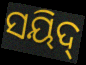
ସୟିଦ୍